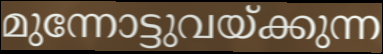
മുന്നോട്ടുവയ്ക്കുന്ന